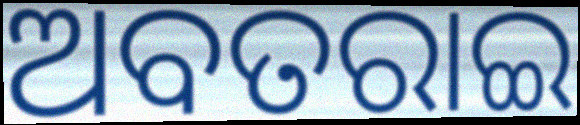
ଅବତରାଇ